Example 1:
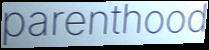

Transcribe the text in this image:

parenthood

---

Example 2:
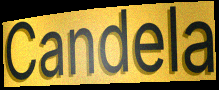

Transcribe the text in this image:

Candela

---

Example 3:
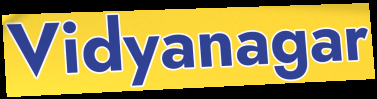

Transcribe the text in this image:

Vidyanagar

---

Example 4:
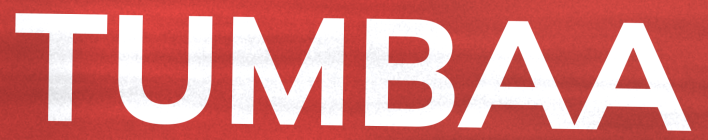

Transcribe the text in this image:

TUMBAA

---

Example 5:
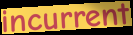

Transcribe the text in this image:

incurrent